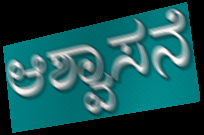
ಆಶ್ವಾಸನೆ